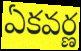
ఏకవర్ణ